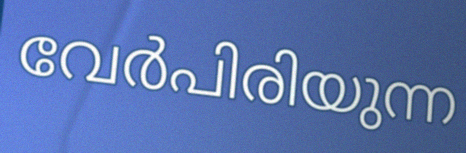
വേർപിരിയുന്ന